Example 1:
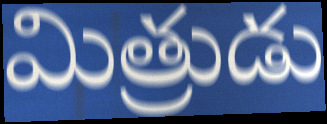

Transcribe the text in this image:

మిత్రుడు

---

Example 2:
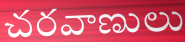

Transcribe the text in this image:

చరవాణులు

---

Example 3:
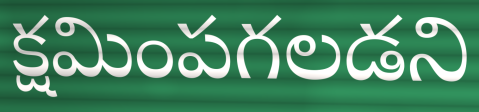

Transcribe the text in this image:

క్షమింపగలడని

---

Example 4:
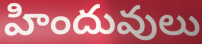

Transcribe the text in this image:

హిందువులు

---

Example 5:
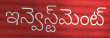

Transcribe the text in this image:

ఇన్వెస్ట్‌మెంట్